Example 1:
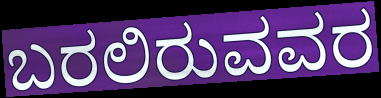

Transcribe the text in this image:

ಬರಲಿರುವವರ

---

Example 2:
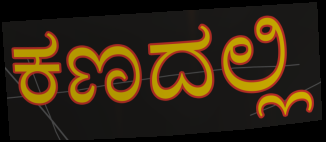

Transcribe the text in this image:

ಕಣದಲ್ಲಿ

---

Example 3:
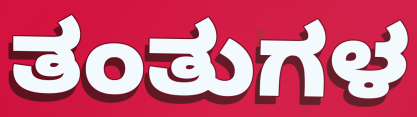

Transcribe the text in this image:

ತಂತುಗಳ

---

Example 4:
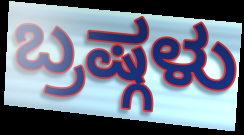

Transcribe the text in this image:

ಬ್ರಷ್ಗಳು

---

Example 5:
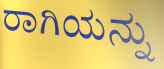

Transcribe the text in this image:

ರಾಗಿಯನ್ನು